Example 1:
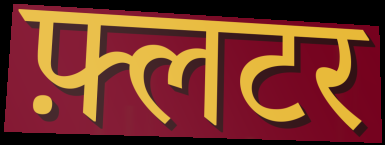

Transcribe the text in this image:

फ़्लटर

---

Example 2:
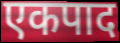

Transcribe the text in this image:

एकपाद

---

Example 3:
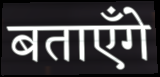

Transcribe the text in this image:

बताएँगे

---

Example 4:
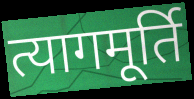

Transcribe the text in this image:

त्यागमूर्ति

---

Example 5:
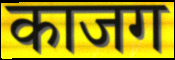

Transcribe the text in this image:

काजग